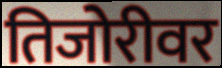
तिजोरीवर